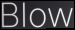
Blow